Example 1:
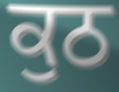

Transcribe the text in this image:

ਕੁਠ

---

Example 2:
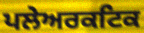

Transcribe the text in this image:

ਪਲੇਅਰਕਟਿਕ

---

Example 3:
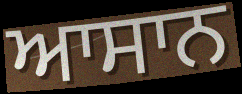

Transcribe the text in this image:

ਆਸਾਨ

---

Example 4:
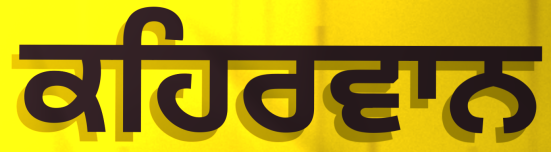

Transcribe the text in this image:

ਕਹਿਰਵਾਨ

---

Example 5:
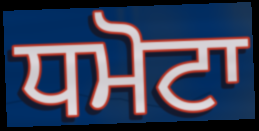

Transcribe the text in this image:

ਧਮੋਟਾ